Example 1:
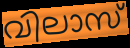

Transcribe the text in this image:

വിലാസ്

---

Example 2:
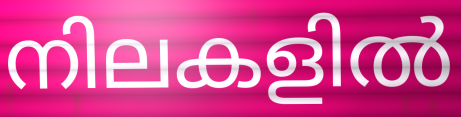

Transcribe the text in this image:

നിലകളിൽ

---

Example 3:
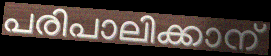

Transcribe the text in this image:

പരിപാലിക്കാന്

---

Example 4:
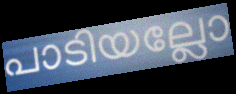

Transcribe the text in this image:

പാടിയല്ലോ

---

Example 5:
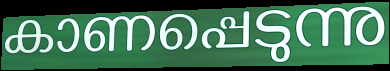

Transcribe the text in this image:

കാണപ്പെടുന്നു